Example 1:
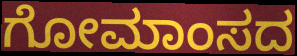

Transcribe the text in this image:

ಗೋಮಾಂಸದ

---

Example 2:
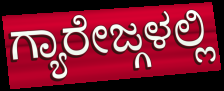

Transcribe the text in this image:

ಗ್ಯಾರೇಜ್ಗಳಲ್ಲಿ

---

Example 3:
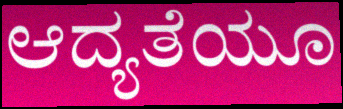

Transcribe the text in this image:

ಆದ್ಯತೆಯೂ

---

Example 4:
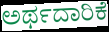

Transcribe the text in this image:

ಅರ್ಥದಾರಿಕೆ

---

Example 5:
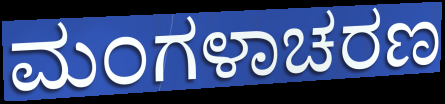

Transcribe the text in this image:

ಮಂಗಳಾಚರಣ